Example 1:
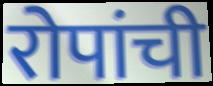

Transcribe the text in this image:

रोपांची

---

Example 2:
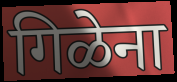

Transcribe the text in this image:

गिळेना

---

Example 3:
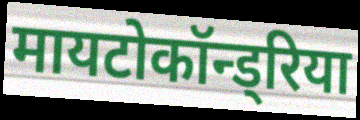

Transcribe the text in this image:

मायटोकॉन्ड्रिया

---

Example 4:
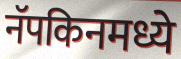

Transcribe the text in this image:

नॅपकिनमध्ये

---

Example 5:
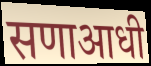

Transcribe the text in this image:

सणाआधी